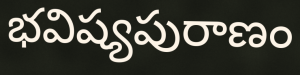
భవిష్యపురాణం